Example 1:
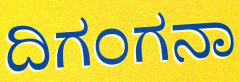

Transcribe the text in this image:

ದಿಗಂಗನಾ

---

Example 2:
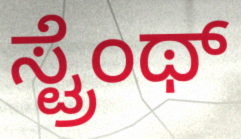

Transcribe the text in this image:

ಸ್ಟ್ರೆಂಥ್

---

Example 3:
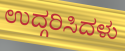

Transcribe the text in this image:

ಉದ್ಗರಿಸಿದಳು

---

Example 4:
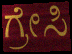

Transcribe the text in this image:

ಗ್ರೇಸಿ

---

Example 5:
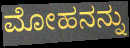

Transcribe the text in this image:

ಮೋಹನನ್ನು